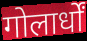
गोलार्धों